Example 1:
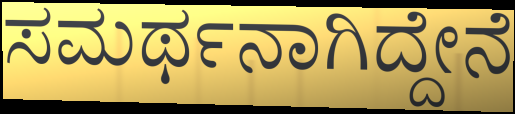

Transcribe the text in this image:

ಸಮರ್ಥನಾಗಿದ್ದೇನೆ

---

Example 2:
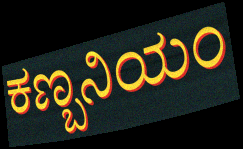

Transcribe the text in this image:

ಕಣ್ಬನಿಯಂ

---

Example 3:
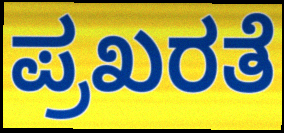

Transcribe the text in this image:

ಪ್ರಖರತೆ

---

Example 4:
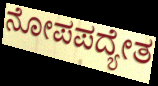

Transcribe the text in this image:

ನೋಪಪದ್ಯೇತ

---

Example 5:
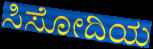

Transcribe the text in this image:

ಸಿಸೋದಿಯ